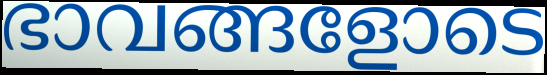
ഭാവങ്ങളോടെ